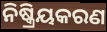
ନିଷ୍କ୍ରିୟକରଣ